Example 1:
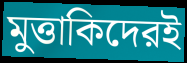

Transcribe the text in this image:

মুত্তাকিদেরই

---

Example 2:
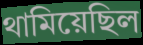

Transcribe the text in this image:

থামিয়েছিল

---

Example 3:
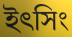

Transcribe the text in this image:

ইৎসিং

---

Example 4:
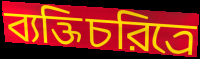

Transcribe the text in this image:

ব্যক্তিচরিত্রে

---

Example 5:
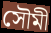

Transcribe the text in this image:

সৌমী